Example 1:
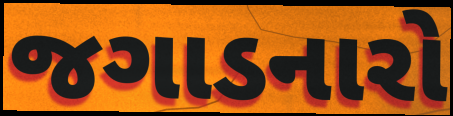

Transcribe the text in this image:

જગાડનારો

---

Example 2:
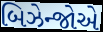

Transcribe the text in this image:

બિઝેન્જોએ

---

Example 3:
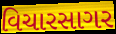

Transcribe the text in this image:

વિચારસાગર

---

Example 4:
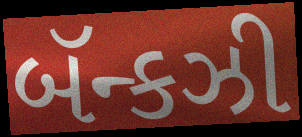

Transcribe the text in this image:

બૅન્કઝી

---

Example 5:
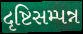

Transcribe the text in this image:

દૃષ્ટિસમ્પન્ન